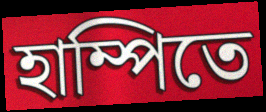
হাম্পিতে